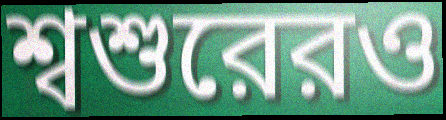
শ্বশুরেরও